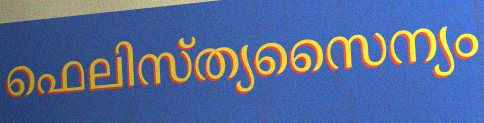
ഫെലിസ്ത്യസൈന്യം